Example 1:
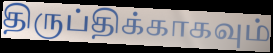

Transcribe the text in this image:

திருப்திக்காகவும்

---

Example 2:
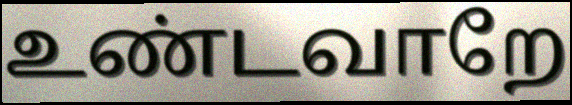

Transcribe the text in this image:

உண்டவாறே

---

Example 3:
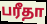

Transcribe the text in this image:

பரீதா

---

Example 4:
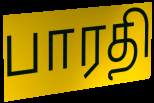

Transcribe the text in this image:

பாரதி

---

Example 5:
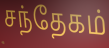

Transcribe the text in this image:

சந்தேகம்